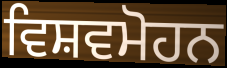
ਵਿਸ਼ਵਮੋਹਨ